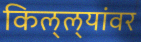
किल्ल्यांवर